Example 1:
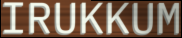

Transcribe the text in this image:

IRUKKUM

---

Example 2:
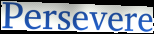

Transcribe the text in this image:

Persevere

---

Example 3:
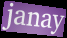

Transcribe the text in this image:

janay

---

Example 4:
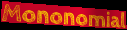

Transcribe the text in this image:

Mononomial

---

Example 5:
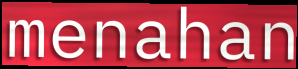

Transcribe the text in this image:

menahan